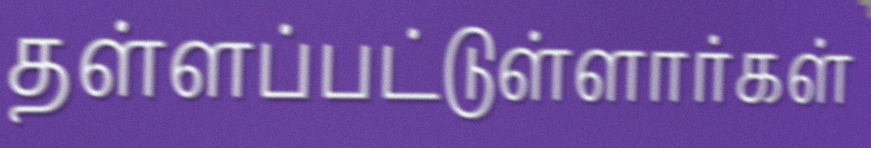
தள்ளப்பட்டுள்ளார்கள்